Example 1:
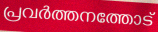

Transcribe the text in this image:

പ്രവർത്തനത്തോട്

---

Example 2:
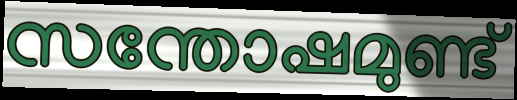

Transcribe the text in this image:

സന്തോഷമുണ്ട്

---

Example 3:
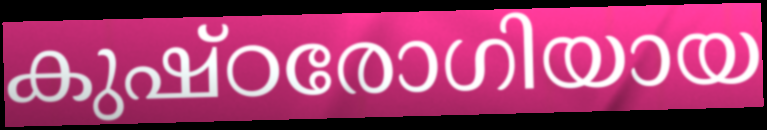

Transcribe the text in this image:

കുഷ്ഠരോഗിയായ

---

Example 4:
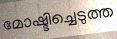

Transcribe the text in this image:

മോഷ്ടിച്ചെടുത്ത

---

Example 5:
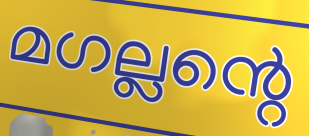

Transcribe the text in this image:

മഗല്ലന്റെ